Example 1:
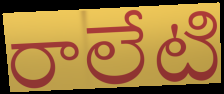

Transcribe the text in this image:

రాలేటి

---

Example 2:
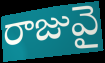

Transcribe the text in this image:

రాజువై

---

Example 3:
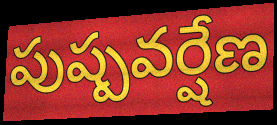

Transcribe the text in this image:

పుష్పవర్షేణ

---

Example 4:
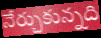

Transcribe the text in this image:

నేర్చుకున్నది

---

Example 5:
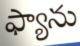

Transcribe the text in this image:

ఫ్యాను